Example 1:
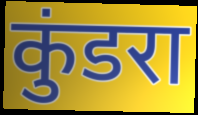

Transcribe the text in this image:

कुंडरा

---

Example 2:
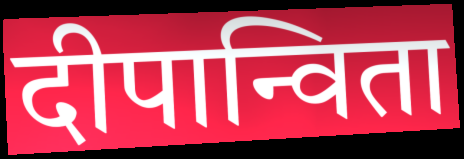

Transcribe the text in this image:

दीपान्विता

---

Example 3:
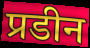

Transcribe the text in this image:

प्रडीन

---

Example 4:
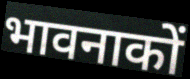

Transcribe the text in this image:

भावनाकों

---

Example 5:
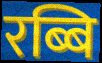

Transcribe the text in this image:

रब्बि